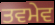
ਤਵਮੇਵ